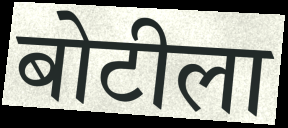
बोटीला